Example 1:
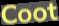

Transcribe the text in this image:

Coot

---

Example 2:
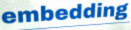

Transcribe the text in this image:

embedding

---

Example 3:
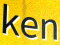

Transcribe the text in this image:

ken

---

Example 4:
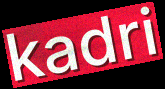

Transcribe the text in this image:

kadri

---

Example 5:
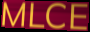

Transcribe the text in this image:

MLCE